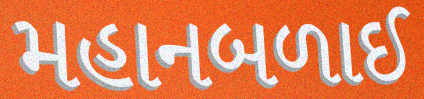
મહાનબળાઈ